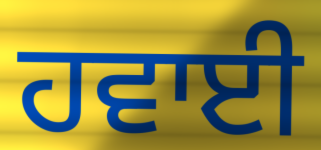
ਹਵਾਈ